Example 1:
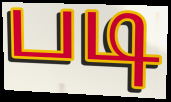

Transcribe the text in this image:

படி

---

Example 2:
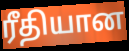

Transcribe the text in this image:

ரீதியான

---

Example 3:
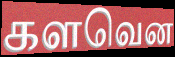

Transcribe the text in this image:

களவென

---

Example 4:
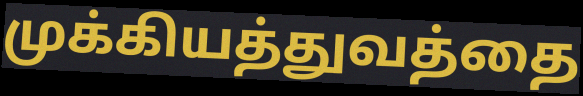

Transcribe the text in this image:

முக்கியத்துவத்தை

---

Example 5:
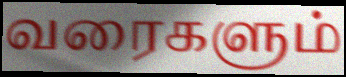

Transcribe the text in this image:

வரைகளும்